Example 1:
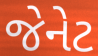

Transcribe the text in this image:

જેનેટ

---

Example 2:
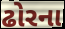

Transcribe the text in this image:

ઢોરના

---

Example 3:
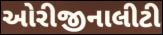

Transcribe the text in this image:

ઓરીજીનાલીટી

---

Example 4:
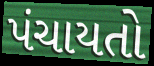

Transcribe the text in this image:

પંચાયતો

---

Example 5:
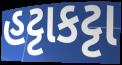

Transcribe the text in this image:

હટ્ટાકટ્ટા